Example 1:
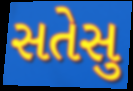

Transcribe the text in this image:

સતેસુ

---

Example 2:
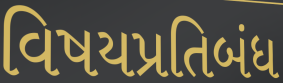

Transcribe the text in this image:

વિષયપ્રતિબંધ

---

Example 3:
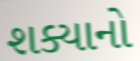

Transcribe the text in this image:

શક્યાનો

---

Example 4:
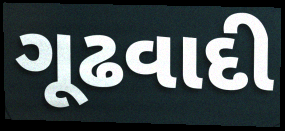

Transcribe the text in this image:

ગૂઢવાદી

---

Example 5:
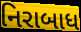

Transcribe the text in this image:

નિરાબાધ